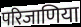
परिजाणिया